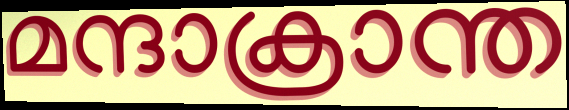
മന്ദാക്രാന്ത